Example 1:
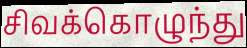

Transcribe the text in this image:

சிவக்கொழுந்து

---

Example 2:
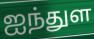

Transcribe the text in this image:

ஐந்துள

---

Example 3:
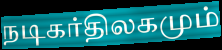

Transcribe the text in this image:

நடிகர்திலகமும்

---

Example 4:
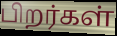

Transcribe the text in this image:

பிறர்கள்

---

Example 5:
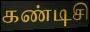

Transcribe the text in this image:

கண்டிசி